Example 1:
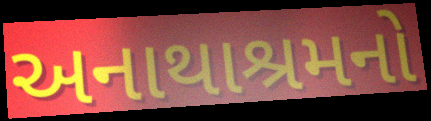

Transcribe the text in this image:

અનાથાશ્રમનો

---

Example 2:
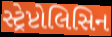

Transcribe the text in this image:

સ્ટ્રેપ્ટોલિસિન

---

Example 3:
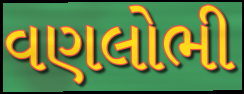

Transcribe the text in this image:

વણલોભી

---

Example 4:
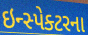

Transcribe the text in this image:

ઇન્સ્પેક્ટરના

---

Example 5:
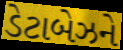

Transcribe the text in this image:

ડેટાબેઝને